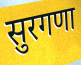
सुरगणा